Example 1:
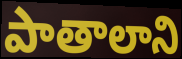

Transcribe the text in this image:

పాతాలాని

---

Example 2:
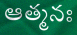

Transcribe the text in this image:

ఆత్మనః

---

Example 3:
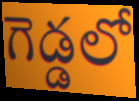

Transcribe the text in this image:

గెడ్డలో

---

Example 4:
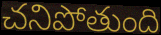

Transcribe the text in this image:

చనిపోతుంది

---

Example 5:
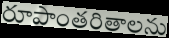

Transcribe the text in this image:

రూపాంతరితాలను